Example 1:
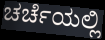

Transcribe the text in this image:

ಚರ್ಚೆಯಲ್ಲಿ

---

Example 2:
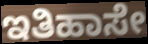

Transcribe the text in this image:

ಇತಿಹಾಸೇ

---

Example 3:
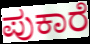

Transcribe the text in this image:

ಪುಕಾರೆ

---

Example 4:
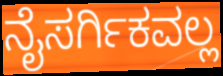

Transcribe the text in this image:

ನೈಸರ್ಗಿಕವಲ್ಲ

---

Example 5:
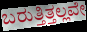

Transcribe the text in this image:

ಬರುತ್ತಿತ್ತಲ್ಲವೇ